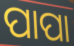
ପାପା